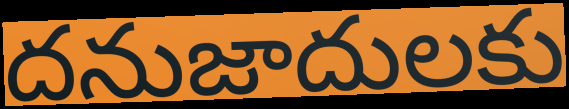
దనుజాదులకు